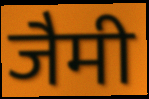
जैमी